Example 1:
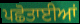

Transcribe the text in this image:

ਪਛੋਤਾਈਆਂ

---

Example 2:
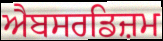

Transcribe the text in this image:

ਐਬਸਰਡਿਜ਼ਮ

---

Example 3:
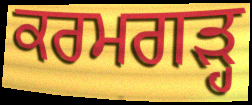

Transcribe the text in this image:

ਕਰਮਗੜ੍ਹ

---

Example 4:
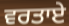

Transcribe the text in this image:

ਵਰਤਾਏ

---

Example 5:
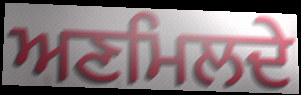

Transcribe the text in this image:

ਅਣਮਿਲਦੇ